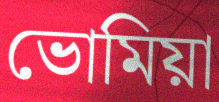
ভোমিয়া